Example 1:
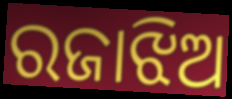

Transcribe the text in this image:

ରଜାଝିଅ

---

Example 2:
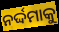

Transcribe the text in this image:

ନର୍ଦ୍ଦମାକୁ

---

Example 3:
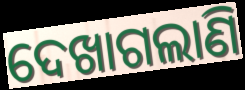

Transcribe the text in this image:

ଦେଖାଗଲାଣି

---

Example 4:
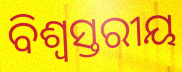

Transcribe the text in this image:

ବିଶ୍ବସ୍ତରୀୟ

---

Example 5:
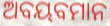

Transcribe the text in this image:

ଅବୟବମାନ